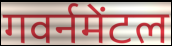
गवर्नमेंटल